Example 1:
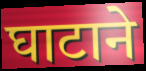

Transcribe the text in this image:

घाटाने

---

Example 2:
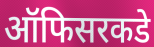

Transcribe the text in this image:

ऑफिसरकडे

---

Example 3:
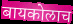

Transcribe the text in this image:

बायकोलाच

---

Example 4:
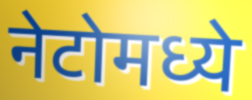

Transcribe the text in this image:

नेटोमध्ये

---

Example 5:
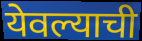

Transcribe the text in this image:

येवल्याची